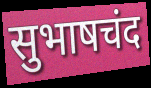
सुभाषचंद